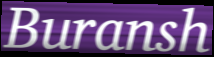
Buransh